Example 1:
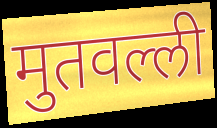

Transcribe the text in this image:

मुतवल्ली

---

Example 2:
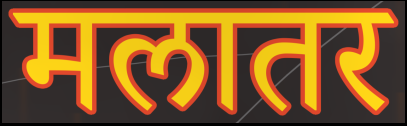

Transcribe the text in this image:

मलातर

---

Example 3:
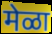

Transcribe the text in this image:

मेळा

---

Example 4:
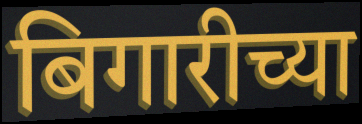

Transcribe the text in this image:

बिगारीच्या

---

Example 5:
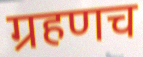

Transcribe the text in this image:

ग्रहणच